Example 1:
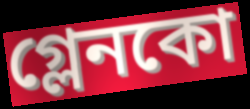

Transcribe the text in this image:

গ্লেনকো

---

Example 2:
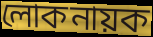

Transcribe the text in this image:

লোকনায়ক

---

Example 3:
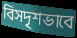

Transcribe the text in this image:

বিসদৃশভাবে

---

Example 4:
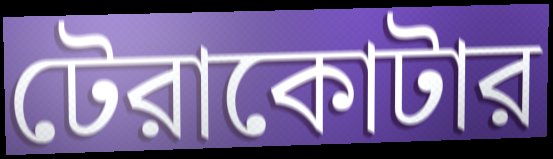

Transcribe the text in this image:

টেরাকোটার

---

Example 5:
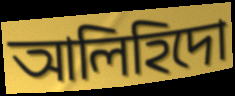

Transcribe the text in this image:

আলিহিদো